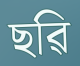
ছৱি